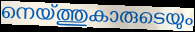
നെയ്ത്തുകാരുടെയും